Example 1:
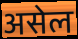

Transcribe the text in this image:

असेल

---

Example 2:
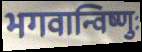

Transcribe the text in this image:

भगवान्विष्णुः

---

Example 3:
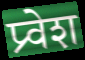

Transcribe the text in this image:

प्र्वेश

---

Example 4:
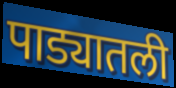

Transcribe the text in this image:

पाड्यातली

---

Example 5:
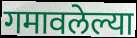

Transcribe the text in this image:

गमावलेल्या